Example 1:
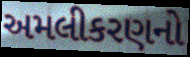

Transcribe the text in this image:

અમલીકરણનો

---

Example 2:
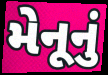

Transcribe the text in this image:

મેનૂનું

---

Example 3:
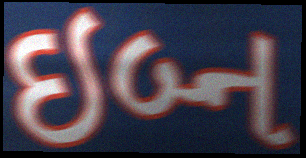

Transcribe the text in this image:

ઇબ્ન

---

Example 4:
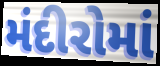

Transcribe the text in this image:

મંદીરોમાં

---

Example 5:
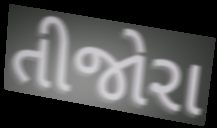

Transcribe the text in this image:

તીજોરા